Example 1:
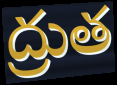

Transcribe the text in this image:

ద్రుత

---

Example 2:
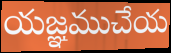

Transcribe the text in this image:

యజ్ఞముచేయ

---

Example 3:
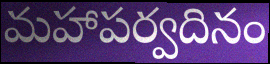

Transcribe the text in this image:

మహాపర్వదినం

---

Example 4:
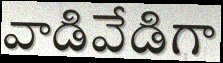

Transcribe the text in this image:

వాడివేడిగా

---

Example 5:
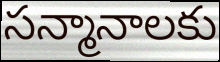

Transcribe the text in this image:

సన్మానాలకు